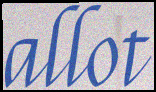
allot